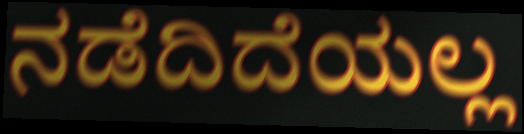
ನಡೆದಿದೆಯಲ್ಲ